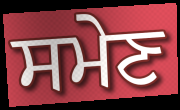
ਸਮੇਣ